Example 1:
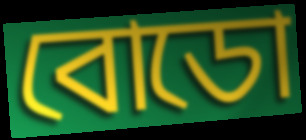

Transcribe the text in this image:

বোডো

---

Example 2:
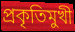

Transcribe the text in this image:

প্রকৃতিমুখী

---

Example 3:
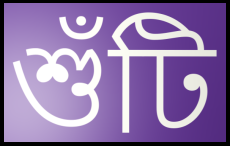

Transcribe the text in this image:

শুঁটি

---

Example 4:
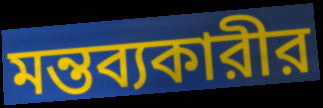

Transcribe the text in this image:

মন্তব্যকারীর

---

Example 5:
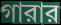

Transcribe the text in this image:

গারার